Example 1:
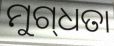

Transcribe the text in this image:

ମୁଗ୍‌ଧତା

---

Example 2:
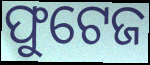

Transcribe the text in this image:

ଫୁଟେଜ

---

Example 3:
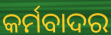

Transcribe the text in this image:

କର୍ମବାଦର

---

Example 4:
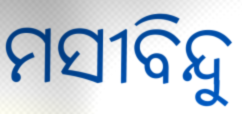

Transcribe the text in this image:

ମସୀବିନ୍ଦୁ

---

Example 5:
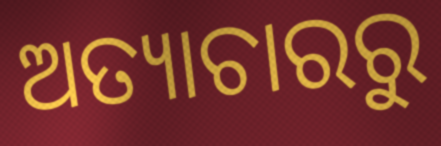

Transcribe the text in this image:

ଅତ୍ୟାଚାରରୁ